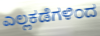
ಎಲ್ಲಕಡೆಗಳಿಂದ